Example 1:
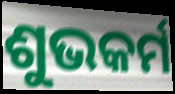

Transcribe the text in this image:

ଶୁଭକର୍ମ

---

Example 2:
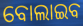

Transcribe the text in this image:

ବୋଲାଇବ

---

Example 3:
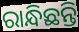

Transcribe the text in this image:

ରାନ୍ଧିଛନ୍ତି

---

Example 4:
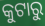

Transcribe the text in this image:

କୁଟାରୁ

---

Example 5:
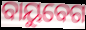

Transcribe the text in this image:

ବାୟୁବେଗ